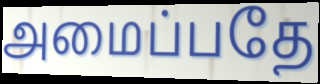
அமைப்பதே